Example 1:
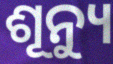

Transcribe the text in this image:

ଶୂନ୍ୟୁ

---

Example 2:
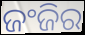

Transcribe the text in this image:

ଜଂଜିର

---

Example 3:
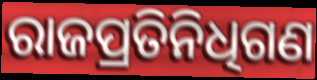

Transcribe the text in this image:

ରାଜପ୍ରତିନିଧିଗଣ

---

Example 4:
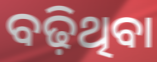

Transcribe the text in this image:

ବଢ଼ିଥିବା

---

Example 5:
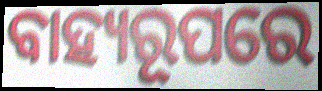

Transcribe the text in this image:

ବାହ୍ୟରୂପରେ